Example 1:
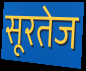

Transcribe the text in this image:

सूरतेज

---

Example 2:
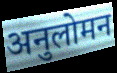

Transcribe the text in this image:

अनुलोमन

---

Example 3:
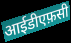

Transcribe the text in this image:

आईडीएफ़सी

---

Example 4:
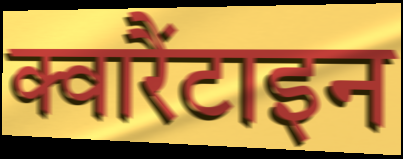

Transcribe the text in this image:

क्वारैंटाइन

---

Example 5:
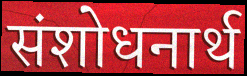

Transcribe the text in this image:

संशोधनार्थ